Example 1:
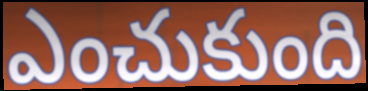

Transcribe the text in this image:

ఎంచుకుంది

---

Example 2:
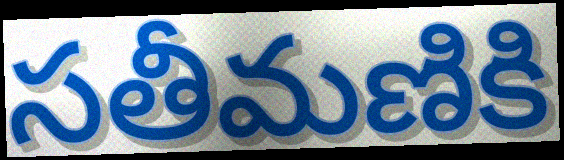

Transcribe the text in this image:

సతీమణికి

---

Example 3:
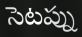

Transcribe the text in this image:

సెటప్ను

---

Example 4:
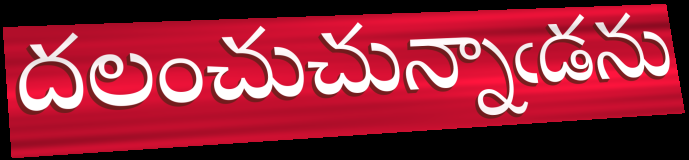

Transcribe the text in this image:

దలంచుచున్నాఁడను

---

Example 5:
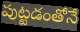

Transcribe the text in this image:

పుట్టడంతోనే